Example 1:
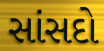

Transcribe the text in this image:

સાંસદો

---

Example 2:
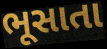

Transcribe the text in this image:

ભૂસાતા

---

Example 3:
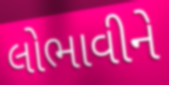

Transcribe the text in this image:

લોભાવીને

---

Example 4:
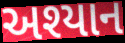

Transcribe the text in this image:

અશ્યાન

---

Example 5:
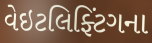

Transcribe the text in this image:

વેઇટલિફ્ટિંગના